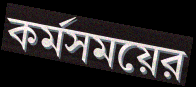
কর্মসময়ের